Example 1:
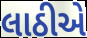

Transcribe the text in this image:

લાઠીએ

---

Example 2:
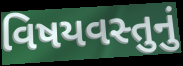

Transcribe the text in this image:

વિષયવસ્તુનું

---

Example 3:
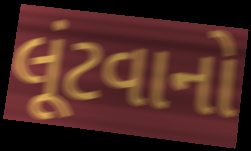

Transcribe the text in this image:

લૂંટવાનો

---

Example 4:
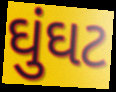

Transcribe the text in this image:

ઘુંઘટ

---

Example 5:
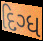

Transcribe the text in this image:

દિગ્ધ